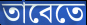
তাবেতে